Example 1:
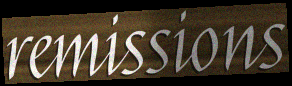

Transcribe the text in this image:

remissions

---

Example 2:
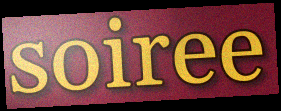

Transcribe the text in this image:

soiree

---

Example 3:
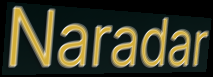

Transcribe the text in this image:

Naradar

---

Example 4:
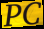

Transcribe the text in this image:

PC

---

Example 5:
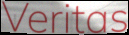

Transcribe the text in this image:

Veritas